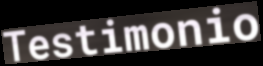
Testimonio